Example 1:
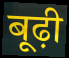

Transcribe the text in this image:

बूढ़ी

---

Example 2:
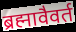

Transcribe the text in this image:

ब्रह्मावैवर्त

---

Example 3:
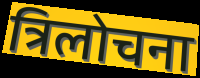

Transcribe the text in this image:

त्रिलोचना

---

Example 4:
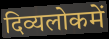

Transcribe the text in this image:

दिव्यलोकमें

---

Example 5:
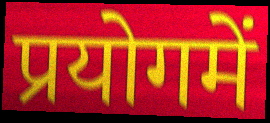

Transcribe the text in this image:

प्रयोगमें